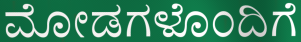
ಮೋಡಗಳೊಂದಿಗೆ